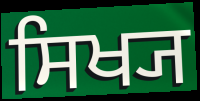
ਸਿਖ੍ਯ